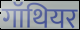
गॉथियर